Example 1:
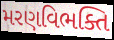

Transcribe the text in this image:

મરણવિભક્તિ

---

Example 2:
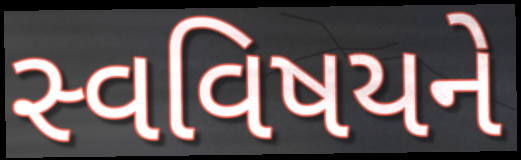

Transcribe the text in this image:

સ્વવિષયને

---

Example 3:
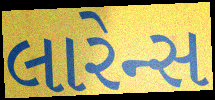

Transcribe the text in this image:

લારેન્સ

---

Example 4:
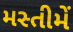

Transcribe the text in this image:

મસ્તીમેં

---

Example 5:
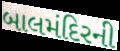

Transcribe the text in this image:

બાલમંદિરની